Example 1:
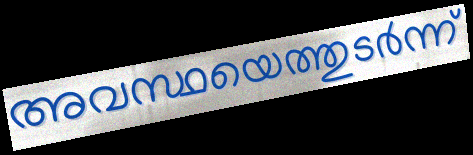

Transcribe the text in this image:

അവസ്ഥയെത്തുടർന്ന്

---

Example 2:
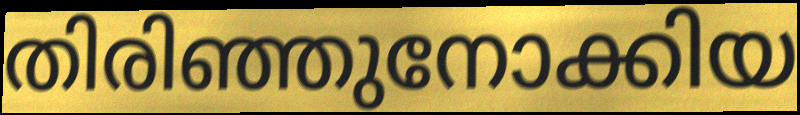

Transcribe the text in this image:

തിരിഞ്ഞുനോക്കിയ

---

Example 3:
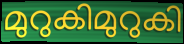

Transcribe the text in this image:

മുറുകിമുറുകി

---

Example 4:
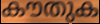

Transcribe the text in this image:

കൗതുക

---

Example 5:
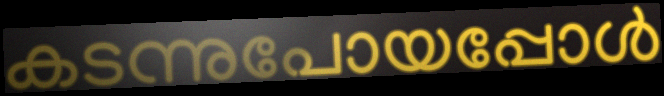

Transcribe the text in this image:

കടന്നുപോയപ്പോൾ